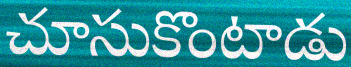
చూసుకొంటాడు